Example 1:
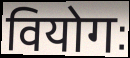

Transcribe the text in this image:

वियोगः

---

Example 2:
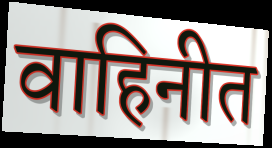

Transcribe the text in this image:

वाहिनीत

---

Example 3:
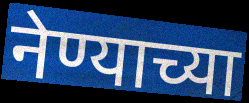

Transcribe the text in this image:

नेण्याच्या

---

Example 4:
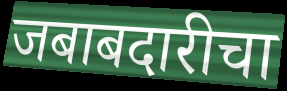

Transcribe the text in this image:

जबाबदारीचा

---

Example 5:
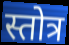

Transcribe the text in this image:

स्तोत्र